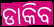
ଡାକିବ